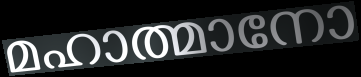
മഹാത്മാനോ